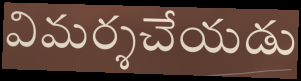
విమర్శచేయడు